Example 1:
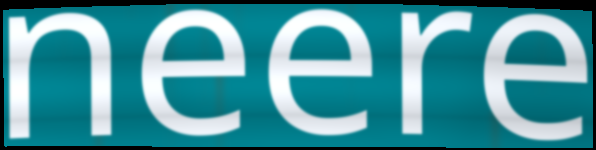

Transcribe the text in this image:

neere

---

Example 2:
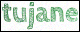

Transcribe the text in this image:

tujane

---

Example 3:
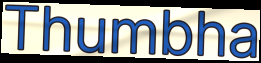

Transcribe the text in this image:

Thumbha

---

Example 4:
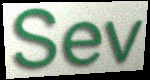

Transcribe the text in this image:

Sev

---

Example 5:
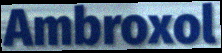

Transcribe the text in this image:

Ambroxol